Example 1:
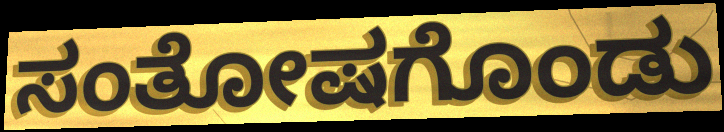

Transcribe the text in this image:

ಸಂತೋಷಗೊಂಡು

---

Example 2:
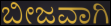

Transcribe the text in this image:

ಬೀಜವಾಗಿ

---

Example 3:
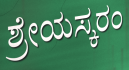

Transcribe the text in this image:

ಶ್ರೇಯಸ್ಕರಂ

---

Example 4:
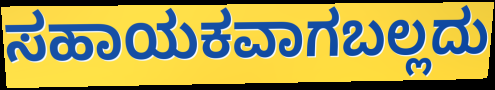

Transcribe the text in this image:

ಸಹಾಯಕವಾಗಬಲ್ಲದು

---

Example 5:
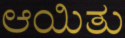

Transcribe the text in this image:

ಆಯಿತು